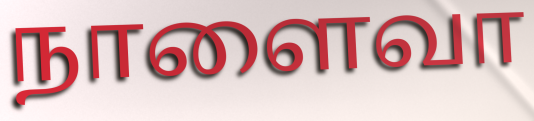
நாளைவா